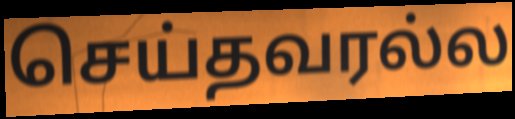
செய்தவரல்ல